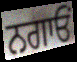
ਨਗਾਓਂ